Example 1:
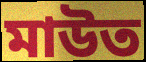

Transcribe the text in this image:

মাউত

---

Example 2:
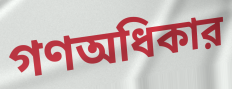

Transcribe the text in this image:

গণঅধিকার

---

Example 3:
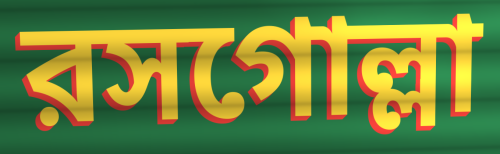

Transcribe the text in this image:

রসগোল্লা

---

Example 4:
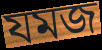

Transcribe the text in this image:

যমজ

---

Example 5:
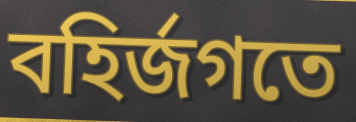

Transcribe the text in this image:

বহির্জগতে